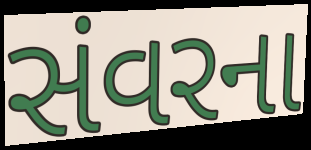
સંવરના